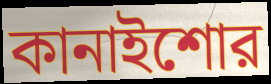
কানাইশোর